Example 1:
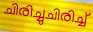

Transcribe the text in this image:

ചിരിച്ചുചിരിച്ച്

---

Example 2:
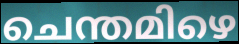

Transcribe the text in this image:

ചെന്തമിഴെ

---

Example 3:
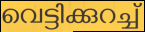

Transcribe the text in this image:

വെട്ടിക്കുറച്ച്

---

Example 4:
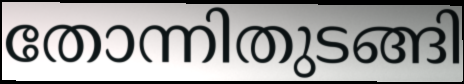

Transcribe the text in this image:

തോന്നിതുടങ്ങി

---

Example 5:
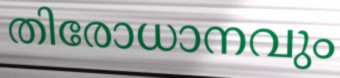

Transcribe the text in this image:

തിരോധാനവും